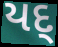
યદ્